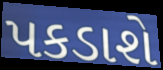
પકડાશે